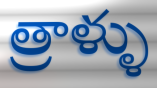
త్రాళ్ళు